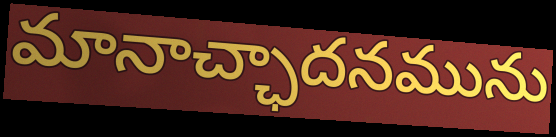
మానాచ్ఛాదనమును